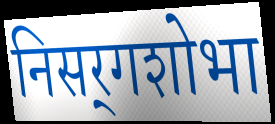
निसर्गशोभा